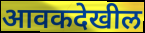
आवकदेखील